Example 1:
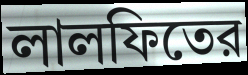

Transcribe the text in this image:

লালফিতের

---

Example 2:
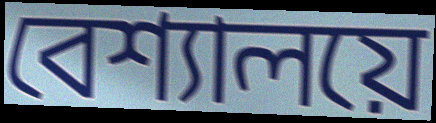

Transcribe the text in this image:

বেশ্যালয়ে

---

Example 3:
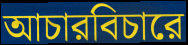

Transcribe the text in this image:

আচারবিচারে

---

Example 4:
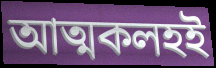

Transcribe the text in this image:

আত্মকলহই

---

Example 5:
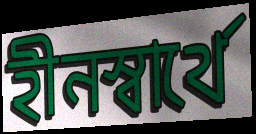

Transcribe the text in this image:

হীনস্বার্থে